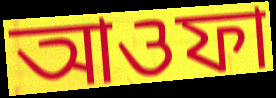
আওফা